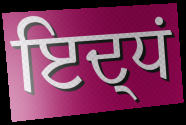
ਇਦ੍ਧਂ